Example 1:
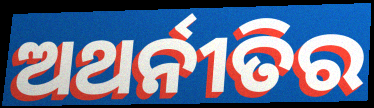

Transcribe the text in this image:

ଅଥର୍ନୀତିର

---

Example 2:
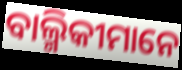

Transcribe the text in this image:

ବାଲ୍ମିକୀମାନେ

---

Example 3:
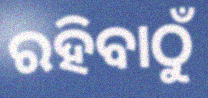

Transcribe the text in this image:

ରହିବାଠୁଁ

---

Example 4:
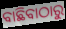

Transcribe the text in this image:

ବାଛିବାଠାରୁ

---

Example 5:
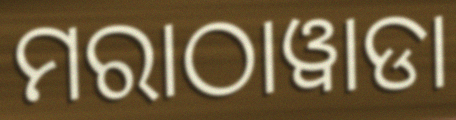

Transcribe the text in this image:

ମରାଠାୱାଡା